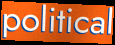
political